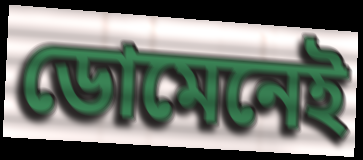
ডোমেনেই